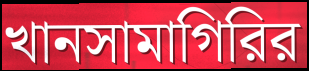
খানসামাগিরির